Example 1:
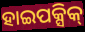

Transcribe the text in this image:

ହାଇପକ୍ସିକ୍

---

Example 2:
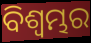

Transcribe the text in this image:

ବିଶ୍ବମ୍ଭର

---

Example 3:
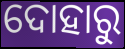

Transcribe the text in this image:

ଦୋହାରୁ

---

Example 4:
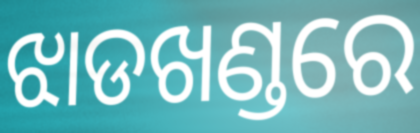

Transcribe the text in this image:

ଝାଡଖଣ୍ଡରେ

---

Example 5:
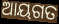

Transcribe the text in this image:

ଆୟଗତ